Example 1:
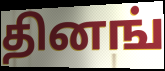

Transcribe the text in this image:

தினங்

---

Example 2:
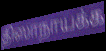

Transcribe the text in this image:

திஸாநாயக்க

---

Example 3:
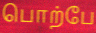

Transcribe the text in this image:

பொற்பே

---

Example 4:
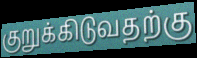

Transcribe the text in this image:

குறுக்கிடுவதற்கு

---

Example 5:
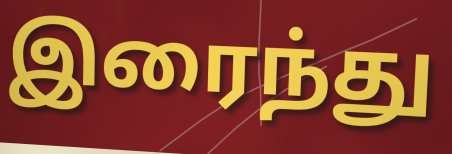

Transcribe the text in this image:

இரைந்து